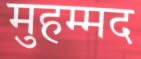
मुहम्मद